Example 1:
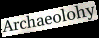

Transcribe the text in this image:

Archaeolohy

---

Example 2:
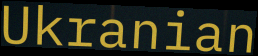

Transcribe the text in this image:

Ukranian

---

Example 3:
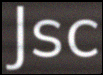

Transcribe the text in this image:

Jsc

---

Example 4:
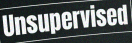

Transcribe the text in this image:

Unsupervised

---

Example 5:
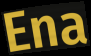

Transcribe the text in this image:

Ena